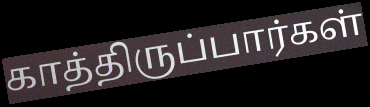
காத்திருப்பார்கள்